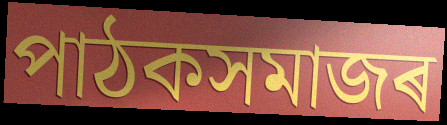
পাঠকসমাজৰ